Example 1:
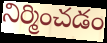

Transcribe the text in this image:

నిర్మించడం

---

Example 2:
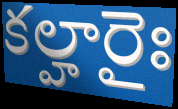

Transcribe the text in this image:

కల్హారైః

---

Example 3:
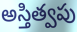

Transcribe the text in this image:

అస్తిత్వపు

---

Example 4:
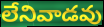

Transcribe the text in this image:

లేనివాడవు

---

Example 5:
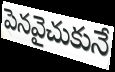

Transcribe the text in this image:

పెనవైచుకునే